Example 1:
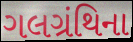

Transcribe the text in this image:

ગલગ્રંથિના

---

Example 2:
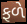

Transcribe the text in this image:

ફળે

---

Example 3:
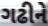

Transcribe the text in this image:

ગઢીને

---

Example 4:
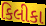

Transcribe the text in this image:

કિલીકા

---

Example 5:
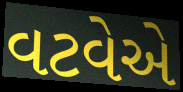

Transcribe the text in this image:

વટવેએ